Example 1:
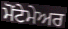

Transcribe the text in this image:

ਮੋਂਟੇਮੇਅਰ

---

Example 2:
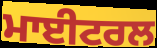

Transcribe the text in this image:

ਮਾਈਟਰਲ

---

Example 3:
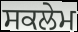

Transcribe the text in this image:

ਸਕਲੇਮ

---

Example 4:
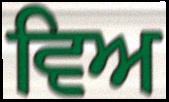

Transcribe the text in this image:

ਵਿਅ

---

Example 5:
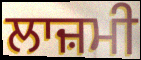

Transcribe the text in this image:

ਲਾਜ਼ਮੀ